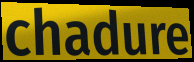
chadure